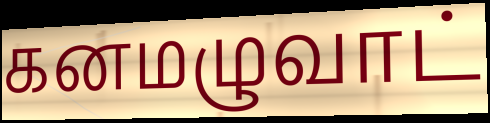
கனமழுவாட்